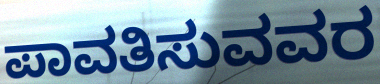
ಪಾವತಿಸುವವರ